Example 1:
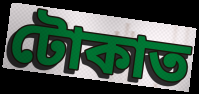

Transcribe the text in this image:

টোকাত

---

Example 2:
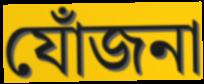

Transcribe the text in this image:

যোঁজনা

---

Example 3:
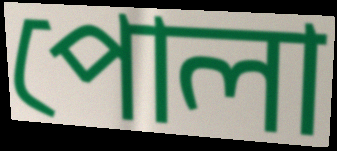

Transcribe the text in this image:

পোলা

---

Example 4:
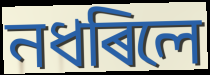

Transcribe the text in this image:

নধৰিলে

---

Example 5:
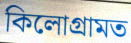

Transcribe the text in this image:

কিলোগ্ৰামত